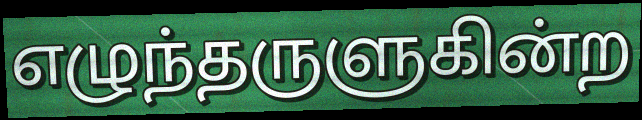
எழுந்தருளுகின்ற